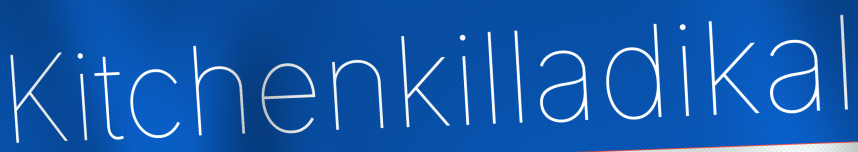
Kitchenkilladikal